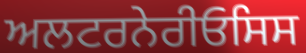
ਅਲਟਰਨੇਰੀਓਸਿਸ